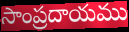
సాంప్రదాయము